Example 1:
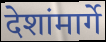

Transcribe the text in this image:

देशांमार्गे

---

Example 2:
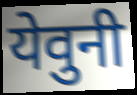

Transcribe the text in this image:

येवुनी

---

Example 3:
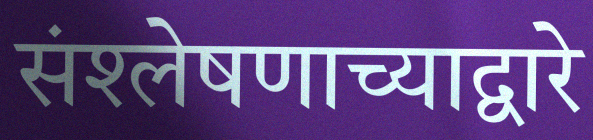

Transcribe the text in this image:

संश्लेषणाच्याद्वारे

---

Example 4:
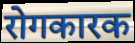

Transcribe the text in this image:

रोगकारक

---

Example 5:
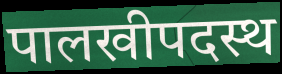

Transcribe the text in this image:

पालखीपदस्थ